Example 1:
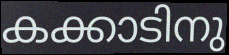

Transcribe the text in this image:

കക്കാടിനു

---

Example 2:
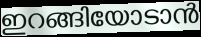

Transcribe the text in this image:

ഇറങ്ങിയോടാൻ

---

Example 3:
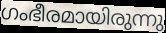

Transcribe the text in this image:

ഗംഭീരമായിരുന്നു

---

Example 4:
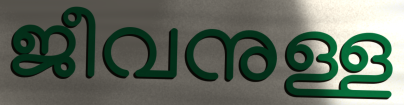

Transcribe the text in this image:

ജീവനുള്ള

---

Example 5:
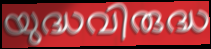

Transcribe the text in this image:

യുദ്ധവിരുദ്ധ